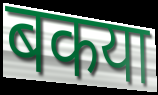
बकया